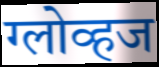
ग्लोव्हज